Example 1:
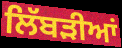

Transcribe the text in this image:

ਲਿੱਬੜੀਆਂ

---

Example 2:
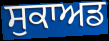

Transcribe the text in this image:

ਸੁਕਾਅਡ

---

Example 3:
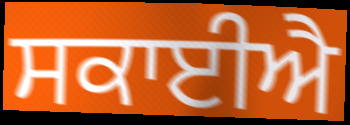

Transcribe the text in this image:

ਸਕਾਈਐ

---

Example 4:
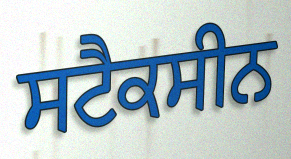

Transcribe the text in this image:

ਸਟੈਕਸੀਨ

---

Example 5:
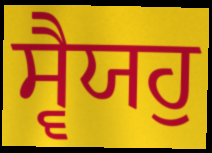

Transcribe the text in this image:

ਸ੍ਵੈਯਹੁ